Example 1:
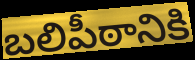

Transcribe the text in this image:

బలిపీఠానికి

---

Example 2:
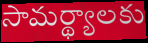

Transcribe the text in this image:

సామర్థ్యాలకు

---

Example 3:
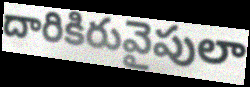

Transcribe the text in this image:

దారికిరువైపులా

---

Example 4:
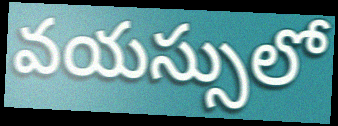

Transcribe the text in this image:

వయస్సులో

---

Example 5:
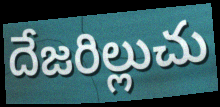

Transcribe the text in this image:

దేజరిల్లుచు